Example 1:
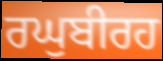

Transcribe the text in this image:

ਰਘੁਬੀਰਹ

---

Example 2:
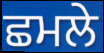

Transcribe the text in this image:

ਛਮਲੇ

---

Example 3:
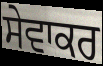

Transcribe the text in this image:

ਸੇਵਾਕਰ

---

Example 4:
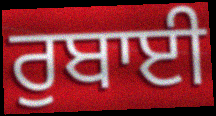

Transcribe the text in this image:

ਰੁਬਾਈ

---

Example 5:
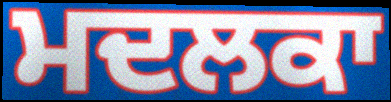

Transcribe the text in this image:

ਮਦਲਕਾ